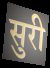
सुरी